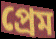
প্রেম